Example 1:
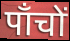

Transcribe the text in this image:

पाँचों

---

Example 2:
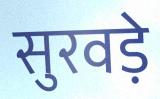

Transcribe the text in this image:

सुरवड़े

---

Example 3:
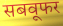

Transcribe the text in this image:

सबवूफर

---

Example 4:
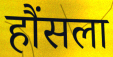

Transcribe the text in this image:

हौंसला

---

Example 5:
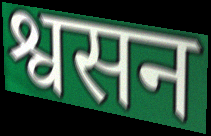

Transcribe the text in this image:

श्वसन